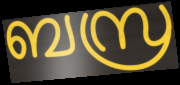
ബസ്ര